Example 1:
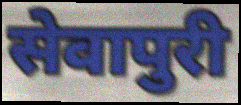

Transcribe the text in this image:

सेवापुरी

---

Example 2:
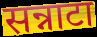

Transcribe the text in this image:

सन्नाटा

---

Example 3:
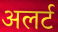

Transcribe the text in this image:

अलर्ट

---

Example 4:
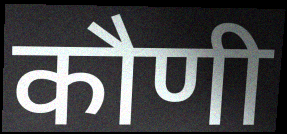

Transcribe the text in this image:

कौणी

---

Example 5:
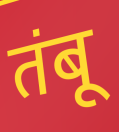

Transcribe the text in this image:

तंबू